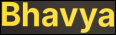
Bhavya